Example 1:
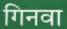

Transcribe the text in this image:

गिनवा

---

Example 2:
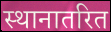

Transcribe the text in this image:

स्थानातरित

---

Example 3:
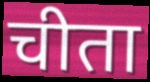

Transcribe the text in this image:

चीता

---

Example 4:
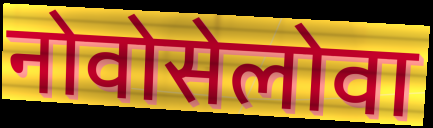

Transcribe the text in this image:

नोवोसेलोवा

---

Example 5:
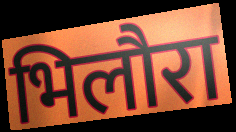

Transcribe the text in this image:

भिलौरा